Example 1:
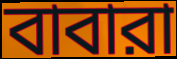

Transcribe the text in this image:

বাবারা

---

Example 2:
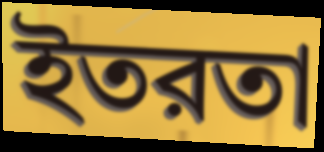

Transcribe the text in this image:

ইতরতা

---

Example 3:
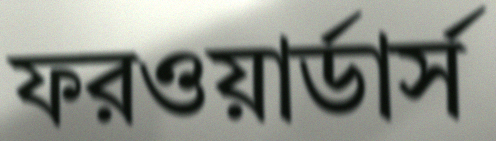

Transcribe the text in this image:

ফরওয়ার্ডার্স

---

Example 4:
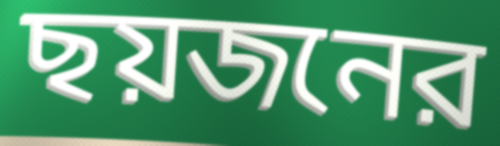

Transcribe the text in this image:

ছয়জনের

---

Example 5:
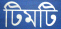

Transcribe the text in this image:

টিমটি